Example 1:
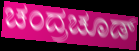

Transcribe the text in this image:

ಚಂದ್ರಚೂಡ್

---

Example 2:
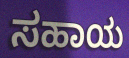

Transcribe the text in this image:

ಸಹಾಯ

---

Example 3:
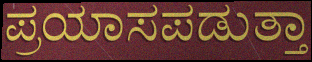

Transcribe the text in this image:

ಪ್ರಯಾಸಪಡುತ್ತಾ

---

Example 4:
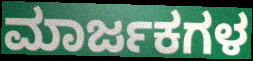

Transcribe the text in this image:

ಮಾರ್ಜಕಗಳ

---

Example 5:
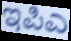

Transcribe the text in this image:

ಇಪಿಎ